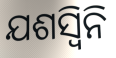
ଯଶସ୍ୱିନି